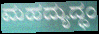
ಮಹದ್ಯುದ್ಧಂ